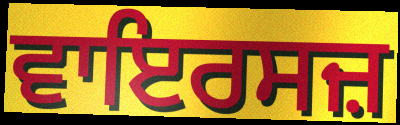
ਵਾਇਰਸਜ਼